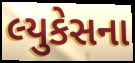
લ્યુકેસના